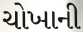
ચોખાની